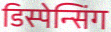
डिस्पेन्सिंग